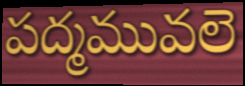
పద్మమువలె